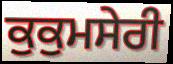
ਕੁਕੁਮਸੇਰੀ